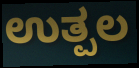
ಉತ್ಪಲ